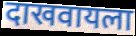
दाखवायला